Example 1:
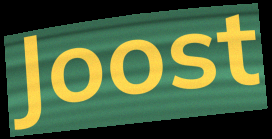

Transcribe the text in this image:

Joost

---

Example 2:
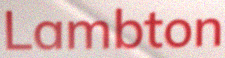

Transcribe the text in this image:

Lambton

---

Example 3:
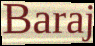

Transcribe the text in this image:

Baraj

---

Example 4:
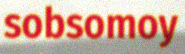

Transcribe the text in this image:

sobsomoy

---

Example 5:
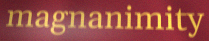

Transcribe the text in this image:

magnanimity